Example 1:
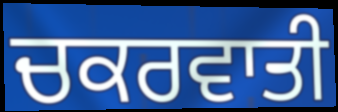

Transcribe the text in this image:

ਚਕਰਵਾਤੀ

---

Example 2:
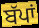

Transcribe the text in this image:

ਬੱਪਾਂ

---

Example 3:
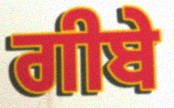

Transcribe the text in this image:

ਗੀਬੇ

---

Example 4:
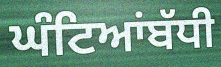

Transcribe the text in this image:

ਘੰਟਿਆਂਬੱਧੀ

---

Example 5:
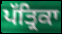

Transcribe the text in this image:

ਪੱਤ੍ਰਿਕਾ